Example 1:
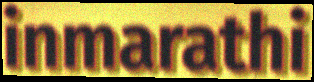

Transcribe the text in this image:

inmarathi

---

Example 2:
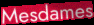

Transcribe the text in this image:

Mesdames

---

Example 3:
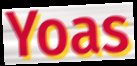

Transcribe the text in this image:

Yoas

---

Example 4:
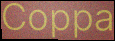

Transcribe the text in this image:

Coppa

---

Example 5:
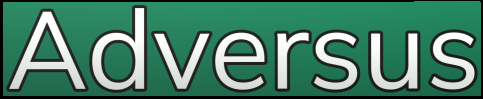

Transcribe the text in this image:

Adversus